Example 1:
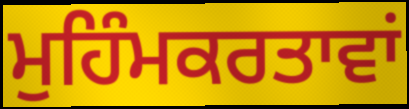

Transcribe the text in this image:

ਮੁਹਿੰਮਕਰਤਾਵਾਂ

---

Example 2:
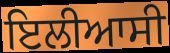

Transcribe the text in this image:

ਇਲੀਆਸੀ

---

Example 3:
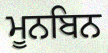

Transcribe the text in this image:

ਮੂਨਬਿਨ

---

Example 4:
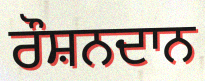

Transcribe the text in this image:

ਰੌਸ਼ਨਦਾਨ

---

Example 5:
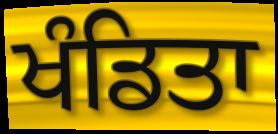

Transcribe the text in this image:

ਖੰਡਿਤਾ